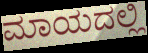
ಮಾಯದಲ್ಲಿ